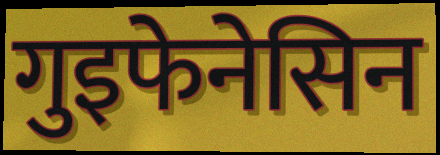
गुइफेनेसिन